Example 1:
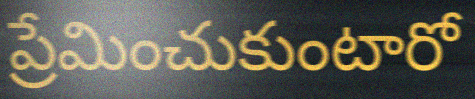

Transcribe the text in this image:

ప్రేమించుకుంటారో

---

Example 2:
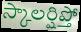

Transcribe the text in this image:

స్కాలర్షిప్తో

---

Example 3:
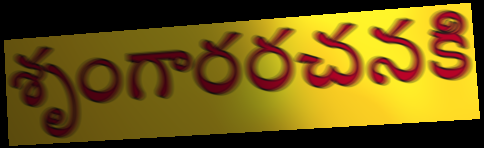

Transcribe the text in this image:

శృంగారరచనకి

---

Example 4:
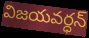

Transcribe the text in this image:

విజయవర్ధన్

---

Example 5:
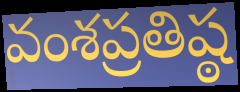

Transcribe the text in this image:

వంశప్రతిష్ఠ